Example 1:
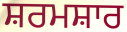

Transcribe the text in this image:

ਸ਼ਰਮਸ਼ਾਰ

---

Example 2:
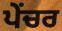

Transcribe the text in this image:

ਪੇਂਚਰ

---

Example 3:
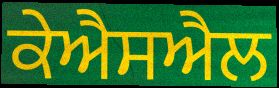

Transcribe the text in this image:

ਕੇਐਸਐਲ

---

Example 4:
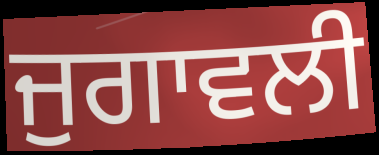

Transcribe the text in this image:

ਜੁਗਾਵਲੀ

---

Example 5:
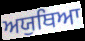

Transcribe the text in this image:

ਅਯੁਥਿਆ